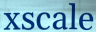
xscale